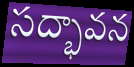
సద్భావన